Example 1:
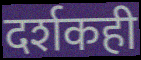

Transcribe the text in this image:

दर्शकही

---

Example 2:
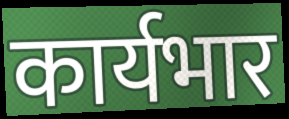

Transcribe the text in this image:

कार्यभार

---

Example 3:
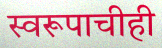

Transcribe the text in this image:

स्वरूपाचीही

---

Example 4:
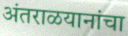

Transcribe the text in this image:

अंतराळयानांचा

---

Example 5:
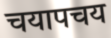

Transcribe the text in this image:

चयापचय